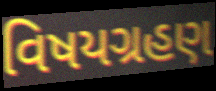
વિષયગ્રહણ